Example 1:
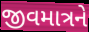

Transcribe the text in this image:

જીવમાત્રને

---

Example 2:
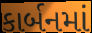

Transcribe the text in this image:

કાર્બનમાં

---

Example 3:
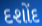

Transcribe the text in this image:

દશોંદ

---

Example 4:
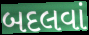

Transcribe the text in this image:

બદલવાં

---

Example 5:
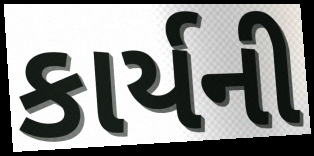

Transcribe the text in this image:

કાર્યની